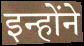
इन्‍होंने